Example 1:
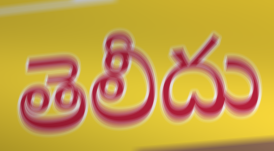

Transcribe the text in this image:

తెలీదు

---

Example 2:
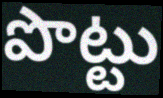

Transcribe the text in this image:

పొట్టు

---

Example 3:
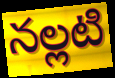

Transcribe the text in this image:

నల్లటి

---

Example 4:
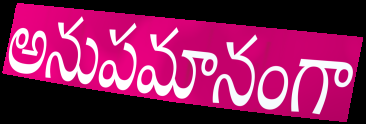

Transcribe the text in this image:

అనుపమానంగా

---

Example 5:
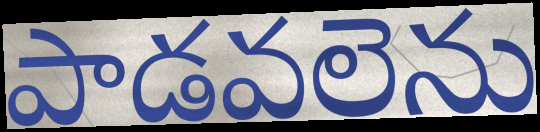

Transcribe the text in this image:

పాడవలెను